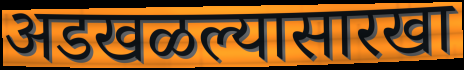
अडखळल्यासारखा